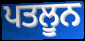
ਪਤਲੂਨ